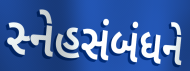
સ્નેહસંબંધને